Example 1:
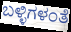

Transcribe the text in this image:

ಬಳ್ಳಿಗಳಂತೆ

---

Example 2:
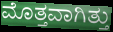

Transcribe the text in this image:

ಮೊತ್ತವಾಗಿತ್ತು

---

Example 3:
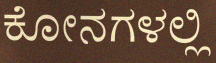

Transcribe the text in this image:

ಕೋನಗಳಲ್ಲಿ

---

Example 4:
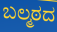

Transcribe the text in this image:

ಬಲ್ಮಠದ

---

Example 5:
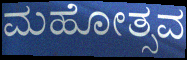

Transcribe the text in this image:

ಮಹೋತ್ಸವ